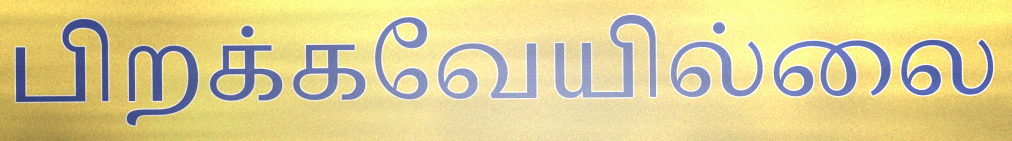
பிறக்கவேயில்லை